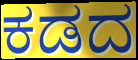
ಕಡದ